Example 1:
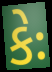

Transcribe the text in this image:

કેઃ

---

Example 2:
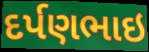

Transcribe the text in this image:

દર્પણભાઇ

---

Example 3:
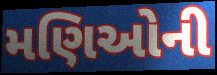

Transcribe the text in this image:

મણિઓની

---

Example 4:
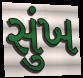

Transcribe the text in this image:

સુંખ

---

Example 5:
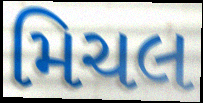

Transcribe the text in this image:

મિચલ